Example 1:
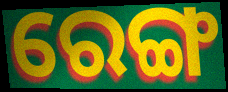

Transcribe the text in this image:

ରେଙ୍ଗ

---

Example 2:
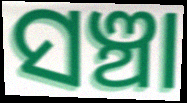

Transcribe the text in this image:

ସଞ୍ଚା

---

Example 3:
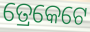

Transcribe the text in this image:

ତ୍ରେକେଟେ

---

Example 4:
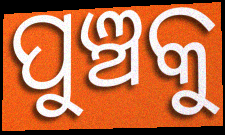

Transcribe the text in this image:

ପୁଞ୍ଚକୁ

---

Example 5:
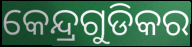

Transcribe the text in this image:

କେନ୍ଦ୍ରଗୁଡିକର